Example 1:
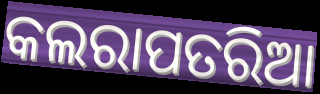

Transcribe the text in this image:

କଲରାପତରିଆ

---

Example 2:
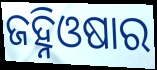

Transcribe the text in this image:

ଜହ୍ନିଓଷାର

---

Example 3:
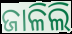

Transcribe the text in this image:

ଜାଳିଲି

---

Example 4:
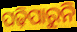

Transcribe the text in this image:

ପଢ଼ିପାରୁନି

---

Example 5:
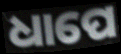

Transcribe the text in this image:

ଧାପେ